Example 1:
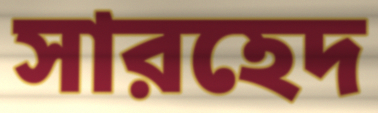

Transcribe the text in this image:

সারহেদ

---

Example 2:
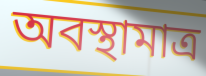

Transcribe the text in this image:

অবস্থামাত্র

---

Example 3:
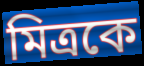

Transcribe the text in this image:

মিত্রকে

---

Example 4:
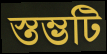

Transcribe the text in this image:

স্তম্ভটি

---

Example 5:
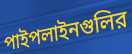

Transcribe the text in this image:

পাইপলাইনগুলির